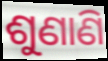
ଶୁଣାଣି